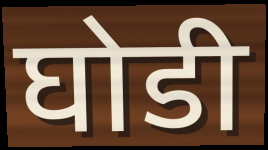
घोडी